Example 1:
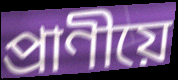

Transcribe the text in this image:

প্ৰাণীয়ে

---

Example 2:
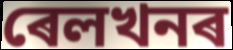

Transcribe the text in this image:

ৰেলখনৰ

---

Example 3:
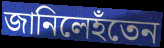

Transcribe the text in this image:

জানিলেহঁতেন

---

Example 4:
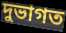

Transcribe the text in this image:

দুভাগত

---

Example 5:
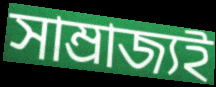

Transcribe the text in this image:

সাম্ৰাজ্যই